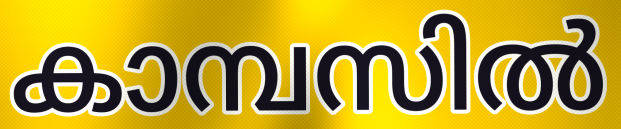
കാമ്പസിൽ